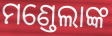
ମଣ୍ଡେଲାଙ୍କ